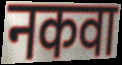
नकवा